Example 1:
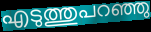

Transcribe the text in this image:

എടുത്തുപറഞ്ഞു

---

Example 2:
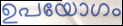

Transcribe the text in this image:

ഉപയോഗം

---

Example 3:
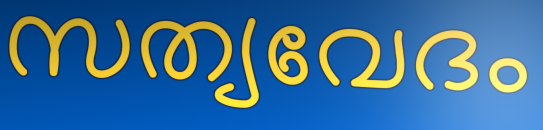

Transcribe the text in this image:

സത്യവേദം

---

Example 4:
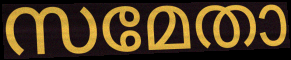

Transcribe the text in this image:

സമേതാ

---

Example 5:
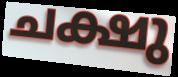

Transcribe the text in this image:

ചക്ഷു